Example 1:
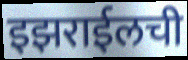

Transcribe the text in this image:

इझराईलची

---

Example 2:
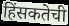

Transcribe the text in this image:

हिंसकतेची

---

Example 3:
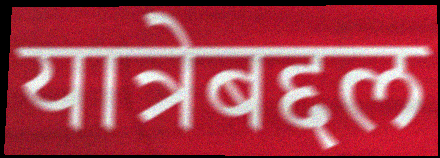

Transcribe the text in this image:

यात्रेबद्दल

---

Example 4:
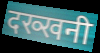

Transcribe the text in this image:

दख्खनी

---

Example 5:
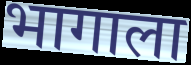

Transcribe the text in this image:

भागाला